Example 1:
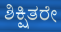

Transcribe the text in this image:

ಶಿಕ್ಷಿತರೇ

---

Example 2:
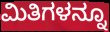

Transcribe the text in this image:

ಮಿತಿಗಳನ್ನೂ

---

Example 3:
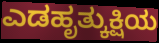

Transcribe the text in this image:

ಎಡಹೃತ್ಕುಕ್ಷಿಯ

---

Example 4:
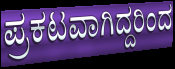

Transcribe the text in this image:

ಪ್ರಕಟವಾಗಿದ್ದರಿಂದ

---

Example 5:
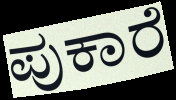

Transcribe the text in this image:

ಪುಕಾರೆ